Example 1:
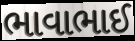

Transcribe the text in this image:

ભાવાભાઈ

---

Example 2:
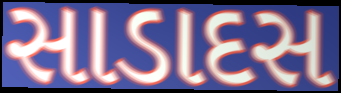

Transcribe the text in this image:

સાડાદસ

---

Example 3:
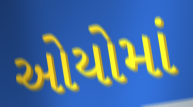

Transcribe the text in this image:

ઓયોમાં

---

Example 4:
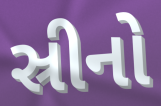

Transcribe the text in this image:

સ્રીનો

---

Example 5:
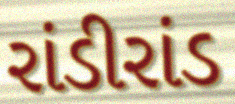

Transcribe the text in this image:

રાંડીરાંડ